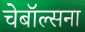
चेबॉल्सना